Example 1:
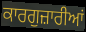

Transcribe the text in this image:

ਕਾਰਗੁਜ਼ਾਰੀਆਂ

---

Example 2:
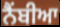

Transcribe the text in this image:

ਨੈਂਬੀਆ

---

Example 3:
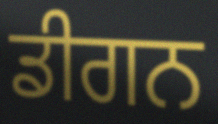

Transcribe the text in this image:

ਡੀਗਨ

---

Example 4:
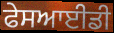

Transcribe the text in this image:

ਫੇਸਆਈਡੀ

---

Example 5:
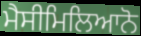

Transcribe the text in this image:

ਮੈਸੀਮਿਲਿਆਨੋ